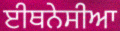
ਈਥਨੇਸੀਆ